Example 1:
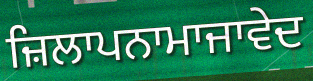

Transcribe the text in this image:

ਜ਼ਿਲਾਪਨਾਮਾਜਾਵੇਦ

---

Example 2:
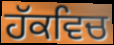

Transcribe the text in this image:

ਹੱਕਵਿਚ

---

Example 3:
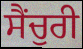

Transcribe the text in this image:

ਸੈਂਚੁਰੀ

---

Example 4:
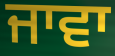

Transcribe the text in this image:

ਜਾਵਾ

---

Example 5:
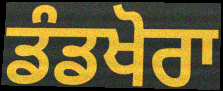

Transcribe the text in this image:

ਡੰਡਖੋਰਾ